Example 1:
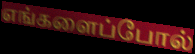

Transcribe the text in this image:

எங்களைப்போல்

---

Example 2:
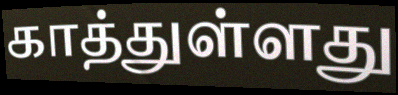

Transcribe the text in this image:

காத்துள்ளது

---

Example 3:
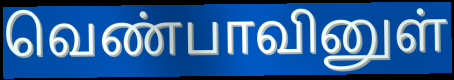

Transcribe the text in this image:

வெண்பாவினுள்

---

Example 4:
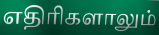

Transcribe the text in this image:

எதிரிகளாலும்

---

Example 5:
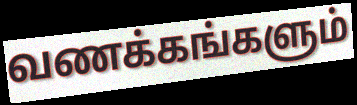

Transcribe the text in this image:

வணக்கங்களும்